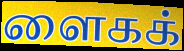
ளைகக்